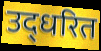
उद्धरित